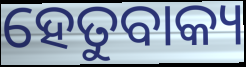
ହେତୁବାକ୍ୟ